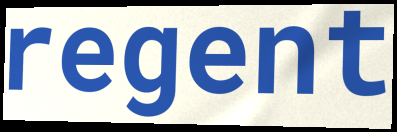
regent